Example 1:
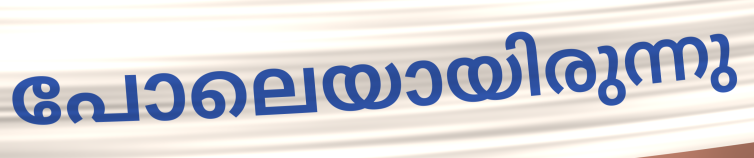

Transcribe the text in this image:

പോലെയായിരുന്നു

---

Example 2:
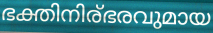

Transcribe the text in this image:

ഭക്തിനിര്ഭരവുമായ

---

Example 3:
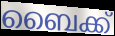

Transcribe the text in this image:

ബൈക്ക്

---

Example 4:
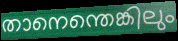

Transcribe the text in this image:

താനെന്തെങ്കിലും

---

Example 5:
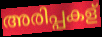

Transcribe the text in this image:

അരിപ്പകള്